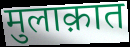
मुलाक़ात